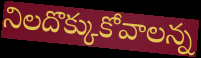
నిలదొక్కుకోవాలన్న